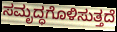
ಸಮೃದ್ಧಗೊಳಿಸುತ್ತದೆ